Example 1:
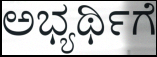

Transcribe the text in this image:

ಅಭ್ಯರ್ಥಿಗೆ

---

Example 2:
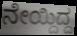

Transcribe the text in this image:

ನೇಯ್ದಿದ್ದ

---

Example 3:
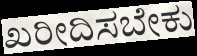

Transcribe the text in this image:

ಖರೀದಿಸಬೇಕು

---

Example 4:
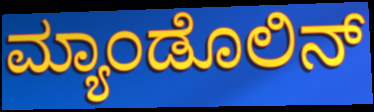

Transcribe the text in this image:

ಮ್ಯಾಂಡೊಲಿನ್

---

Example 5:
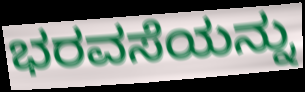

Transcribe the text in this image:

ಭರವಸೆಯನ್ನು